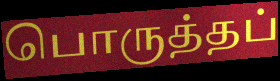
பொருத்தப்